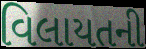
વિલાયતની